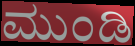
ಮುಂಡಿ